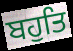
ਬਹੁਤਿ